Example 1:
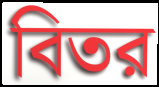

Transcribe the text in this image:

বিতর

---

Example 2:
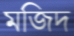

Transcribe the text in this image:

মজিদ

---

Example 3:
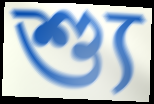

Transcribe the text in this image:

শ্যু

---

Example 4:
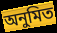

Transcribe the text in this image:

অনুমিত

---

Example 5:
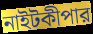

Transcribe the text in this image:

নাইটকীপার